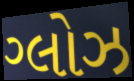
ગ્લોઝ